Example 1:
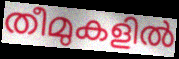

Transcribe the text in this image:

തീമുകളിൽ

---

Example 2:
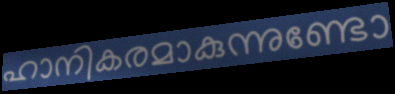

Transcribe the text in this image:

ഹാനികരമാകുന്നുണ്ടോ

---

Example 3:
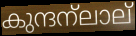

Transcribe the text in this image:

കുന്ദന്ലാല്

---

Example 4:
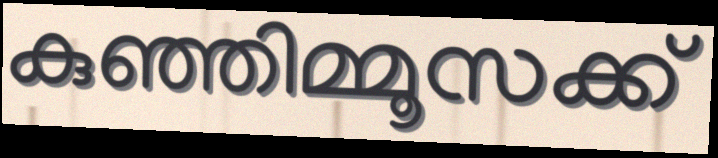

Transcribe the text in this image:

കുഞ്ഞിമ്മൂസക്ക്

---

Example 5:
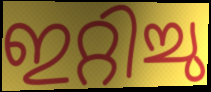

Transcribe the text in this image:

ഇറ്റിച്ചു